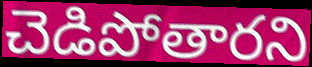
చెడిపోతారని